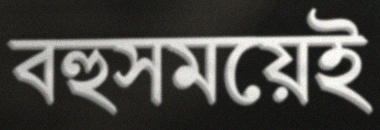
বহুসময়েই